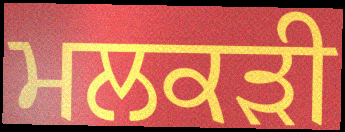
ਮਲਕੜੀ